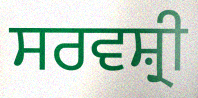
ਸਰਵਸ਼੍ਰੀ